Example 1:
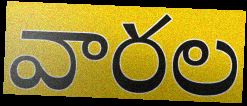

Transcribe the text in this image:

వారల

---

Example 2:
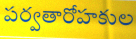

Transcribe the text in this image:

పర్వతారోహకుల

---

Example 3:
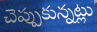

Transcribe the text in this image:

చెప్పుకున్నట్లు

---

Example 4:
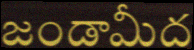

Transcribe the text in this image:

జండామీద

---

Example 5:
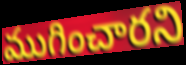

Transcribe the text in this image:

ముగించారని